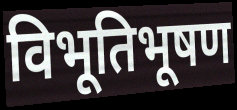
विभूतिभूषण